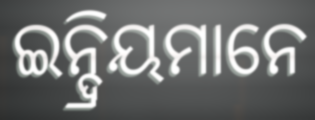
ଇନ୍ଦ୍ରିୟମାନେ